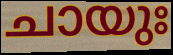
ചായുഃ